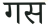
गस